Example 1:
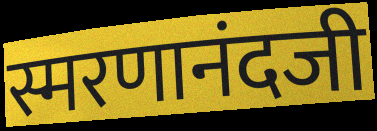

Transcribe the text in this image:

स्मरणानंदजी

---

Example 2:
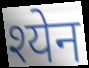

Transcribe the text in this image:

श्येन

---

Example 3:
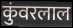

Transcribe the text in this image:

कुंवरलाल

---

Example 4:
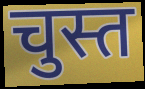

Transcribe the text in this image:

चुस्त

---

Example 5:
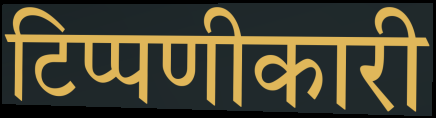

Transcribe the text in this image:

टिप्पणीकारी